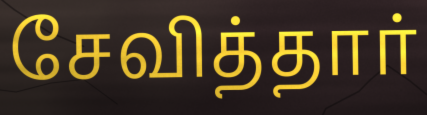
சேவித்தார்